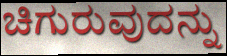
ಚಿಗುರುವುದನ್ನು